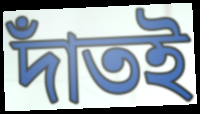
দাঁতই